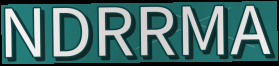
NDRRMA